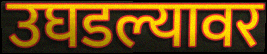
उघडल्यावर